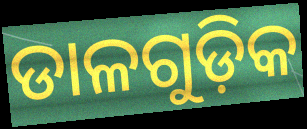
ଡାଳଗୁଡ଼ିକ